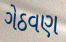
ગેઠવણ